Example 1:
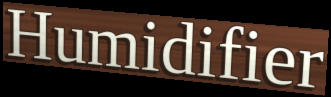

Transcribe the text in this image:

Humidifier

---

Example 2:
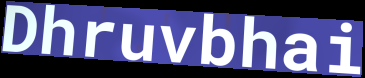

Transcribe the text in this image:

Dhruvbhai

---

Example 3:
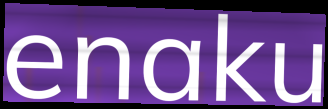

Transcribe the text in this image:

enaku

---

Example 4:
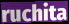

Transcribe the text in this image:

ruchita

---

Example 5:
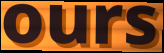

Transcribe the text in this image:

ours